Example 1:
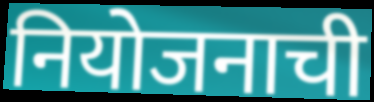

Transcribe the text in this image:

नियोजनाची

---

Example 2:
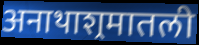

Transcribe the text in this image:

अनाथाश्रमातली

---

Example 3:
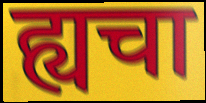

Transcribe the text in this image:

ह्यचा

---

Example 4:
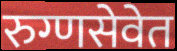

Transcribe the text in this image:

रुग्णसेवेत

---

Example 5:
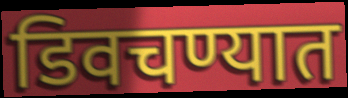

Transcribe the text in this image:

डिवचण्यात